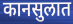
कानसुलात